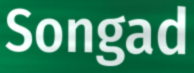
Songad